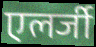
एलर्जी